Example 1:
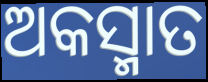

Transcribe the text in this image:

ଅକସ୍ମାତ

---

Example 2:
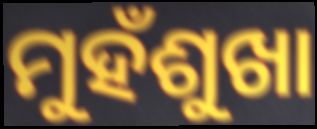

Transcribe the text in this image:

ମୁହଁଶୁଖା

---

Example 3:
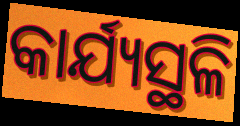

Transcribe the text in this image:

କାର୍ଯ୍ୟସ୍ଥଳି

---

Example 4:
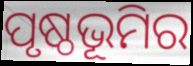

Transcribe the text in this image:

ପୃଷ୍ଠଭୂମିର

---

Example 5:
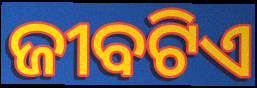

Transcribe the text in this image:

ଜୀବଟିଏ